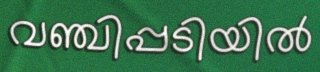
വഞ്ചിപ്പടിയിൽ